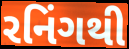
રનિંગથી